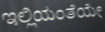
ಇಲ್ಲಿಯಂತೆಯೇ